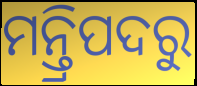
ମନ୍ତ୍ରିପଦରୁ